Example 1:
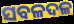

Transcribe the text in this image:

ସବଳଦଳ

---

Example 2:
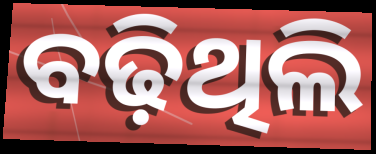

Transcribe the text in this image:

ବଢ଼ିଥିଲି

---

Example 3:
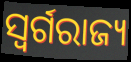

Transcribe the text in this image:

ସ୍ୱର୍ଗରାଜ୍ୟ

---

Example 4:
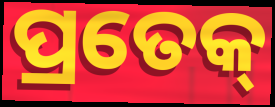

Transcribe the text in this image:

ପ୍ରତେକ୍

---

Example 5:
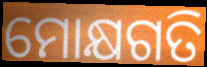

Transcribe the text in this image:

ମୋକ୍ଷଗତି